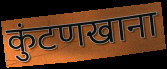
कुंटणखाना